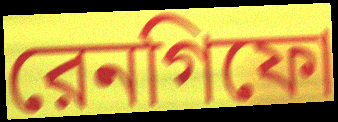
রেনগিফো